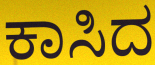
ಕಾಸಿದ